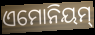
ଏମୋନିୟମ୍